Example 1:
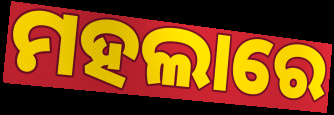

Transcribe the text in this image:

ମହଲାରେ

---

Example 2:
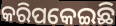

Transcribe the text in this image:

କରିପକେଇଛି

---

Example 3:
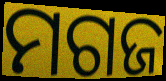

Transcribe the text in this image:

ମଗଜ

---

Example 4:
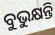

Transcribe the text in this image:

ବୁଭୁକ୍ଷନ୍ତି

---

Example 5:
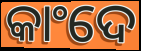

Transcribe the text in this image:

କାଂଦେ